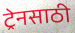
ट्रेनसाठी